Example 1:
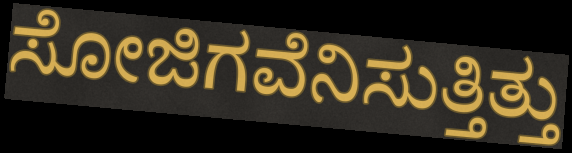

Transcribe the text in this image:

ಸೋಜಿಗವೆನಿಸುತ್ತಿತ್ತು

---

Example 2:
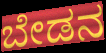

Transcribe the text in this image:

ಬೇಡನ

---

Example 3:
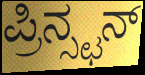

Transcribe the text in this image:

ಪ್ರಿನ್ಸ್ಟನ್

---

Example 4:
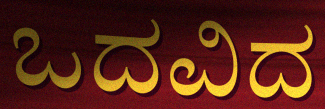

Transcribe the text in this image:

ಒದವಿದ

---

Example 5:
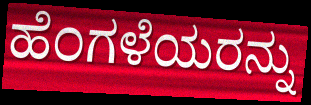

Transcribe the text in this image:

ಹೆಂಗಳೆಯರನ್ನು